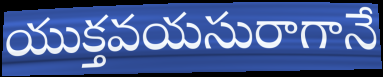
యుక్తవయసురాగానే